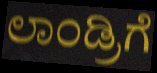
ಲಾಂಡ್ರಿಗೆ